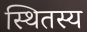
स्थितस्य